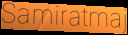
Samiratmaj